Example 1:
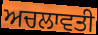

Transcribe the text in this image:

ਅਚਲਾਵਤੀ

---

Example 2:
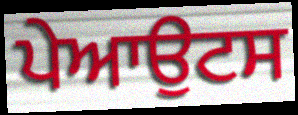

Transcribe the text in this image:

ਪੇਆਉਟਸ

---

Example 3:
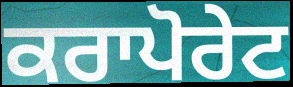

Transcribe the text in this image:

ਕਰਾਪੋਰੇਟ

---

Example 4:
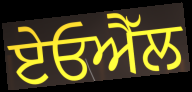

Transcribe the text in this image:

ਏਓਐੱਲ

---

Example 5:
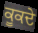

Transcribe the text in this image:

ਕੂਕਦੇ